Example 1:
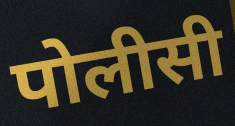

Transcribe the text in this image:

पोलीसी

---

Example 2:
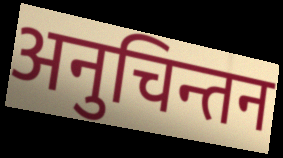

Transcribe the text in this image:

अनुचिन्तन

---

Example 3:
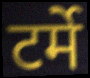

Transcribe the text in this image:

टर्मे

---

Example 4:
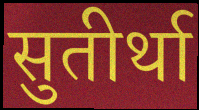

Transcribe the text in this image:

सुतीर्था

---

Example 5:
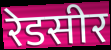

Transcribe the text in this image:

रेडसीर